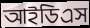
আইডিএস